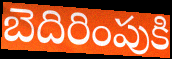
బెదిరింపుకి